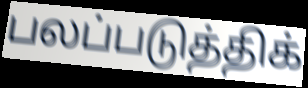
பலப்படுத்திக்